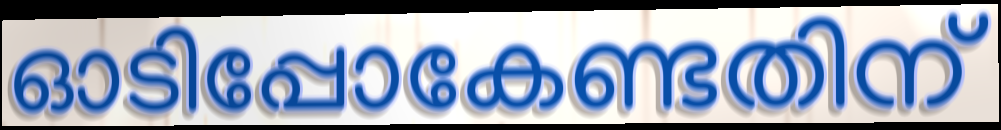
ഓടിപ്പോകേണ്ടതിന്